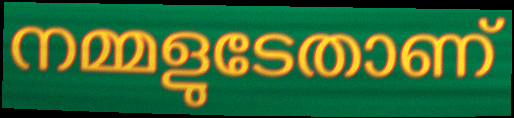
നമ്മളുടേതാണ്